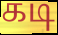
கடி